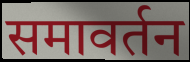
समावर्तन